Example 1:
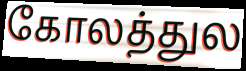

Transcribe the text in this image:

கோலத்துல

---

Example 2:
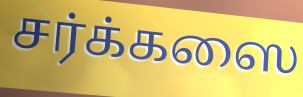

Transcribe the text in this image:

சர்க்கஸை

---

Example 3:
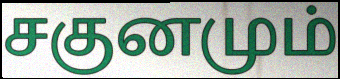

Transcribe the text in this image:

சகுனமும்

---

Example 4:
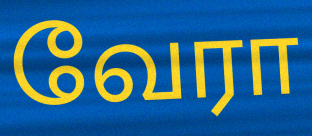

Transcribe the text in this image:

வேரா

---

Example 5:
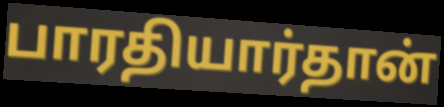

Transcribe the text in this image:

பாரதியார்தான்